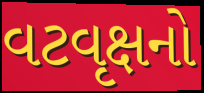
વટવૃક્ષનો